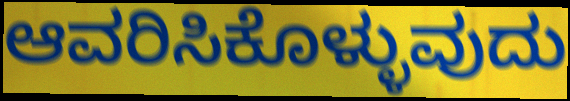
ಆವರಿಸಿಕೊಳ್ಳುವುದು